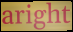
aright